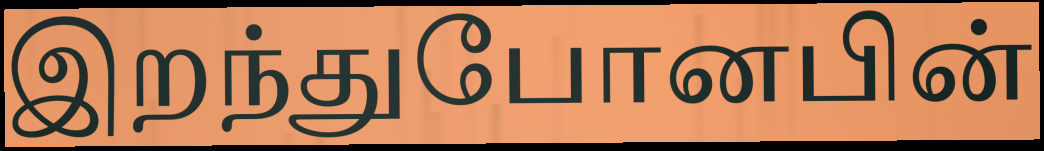
இறந்துபோனபின்